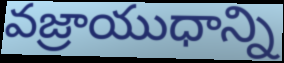
వజ్రాయుధాన్ని